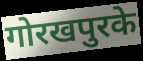
गोरखपुरके